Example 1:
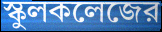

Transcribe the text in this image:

স্কুলকলেজের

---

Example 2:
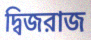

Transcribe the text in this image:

দ্বিজরাজ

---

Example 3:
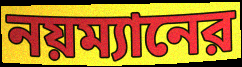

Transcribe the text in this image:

নয়ম্যানের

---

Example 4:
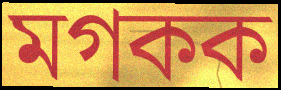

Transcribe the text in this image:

মগকক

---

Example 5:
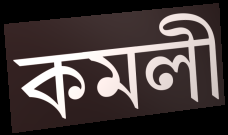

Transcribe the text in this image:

কমলী